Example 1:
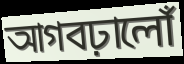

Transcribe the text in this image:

আগবঢ়ালোঁ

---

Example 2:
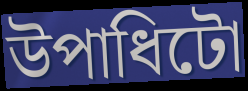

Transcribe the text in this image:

উপাধিটো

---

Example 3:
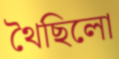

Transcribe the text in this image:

থৈছিলো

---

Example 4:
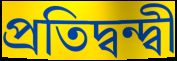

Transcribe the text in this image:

প্ৰতিদ্বন্দ্বী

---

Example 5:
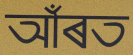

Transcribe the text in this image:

আঁৰত